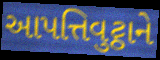
આપત્તિવુટ્ઠાને